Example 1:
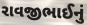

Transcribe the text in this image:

રાવજીભાઈનું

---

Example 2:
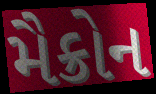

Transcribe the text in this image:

મૈક્રોન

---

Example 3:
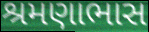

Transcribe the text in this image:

શ્રમણાભાસ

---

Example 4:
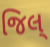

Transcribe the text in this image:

જિલ્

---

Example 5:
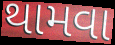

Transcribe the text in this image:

થામવા